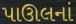
પાઊલનાં